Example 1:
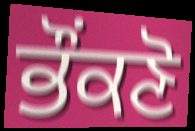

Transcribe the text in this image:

ਭੌਂਕਣੋ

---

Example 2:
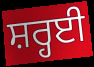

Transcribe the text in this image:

ਸ਼ਰ੍ਹਈ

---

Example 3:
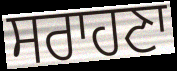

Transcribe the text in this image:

ਸਰਾਹਣਾ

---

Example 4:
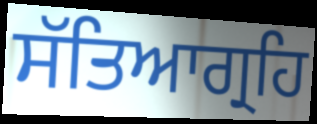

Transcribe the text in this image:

ਸੱਤਿਆਗ੍ਰਹਿ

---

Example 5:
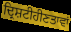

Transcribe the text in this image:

ਦ੍ਰਿਸ਼ਟੀਹੀਣਤਾਵਾਂ